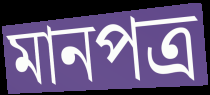
মানপত্র